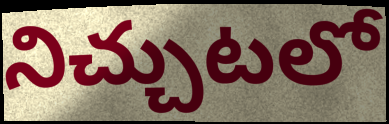
నిచ్చుటలో